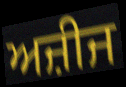
ਅਜ਼ੀਜ